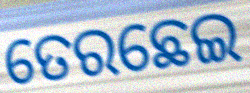
ତେରଛେଇ